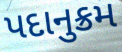
પદાનુક્રમ